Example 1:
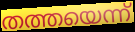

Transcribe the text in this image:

തത്തയെന്ന്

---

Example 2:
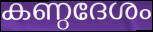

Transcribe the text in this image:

കണ്ഠദേശം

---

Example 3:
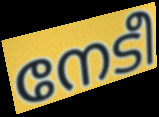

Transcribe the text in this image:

നേടീ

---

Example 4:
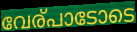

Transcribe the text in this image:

വേര്പാടോടെ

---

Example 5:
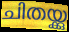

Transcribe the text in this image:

ചിതയ്ക്കു